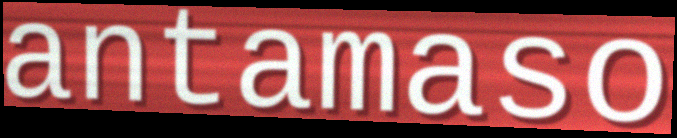
antamaso